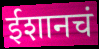
ईशानचं